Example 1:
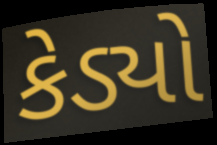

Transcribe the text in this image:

કેડ્યો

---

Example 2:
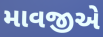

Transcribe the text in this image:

માવજીએ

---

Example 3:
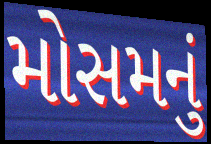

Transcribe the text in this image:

મોસમનું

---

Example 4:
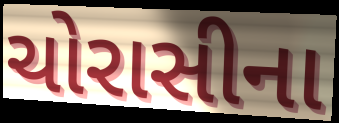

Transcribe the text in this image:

ચોરાસીના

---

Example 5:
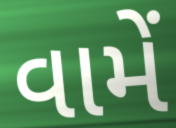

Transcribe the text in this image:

વામેં